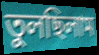
তুলছিলাম